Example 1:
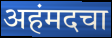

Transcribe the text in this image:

अहंमदचा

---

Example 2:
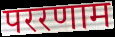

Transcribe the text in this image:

पररणाम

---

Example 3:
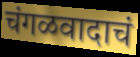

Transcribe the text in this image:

चंगळवादाचं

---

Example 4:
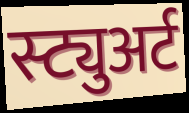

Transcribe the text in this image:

स्ट्युअर्ट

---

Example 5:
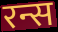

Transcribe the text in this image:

रन्स